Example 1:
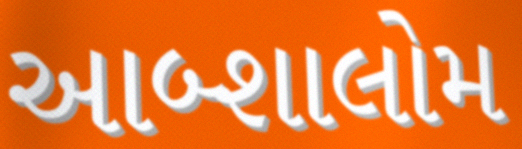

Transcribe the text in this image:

આબ્શાલોમ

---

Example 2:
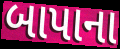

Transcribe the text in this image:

બાપાના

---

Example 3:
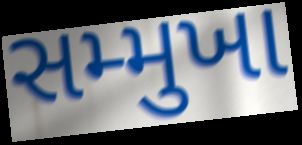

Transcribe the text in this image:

સમ્મુખા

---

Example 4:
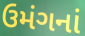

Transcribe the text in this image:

ઉમંગનાં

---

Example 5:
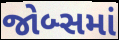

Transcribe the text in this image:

જોબ્સમાં